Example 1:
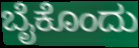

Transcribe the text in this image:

ಬೈಕೊಂದು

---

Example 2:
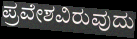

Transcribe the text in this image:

ಪ್ರವೇಶವಿರುವುದು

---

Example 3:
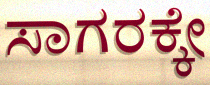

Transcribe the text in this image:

ಸಾಗರಕ್ಕೇ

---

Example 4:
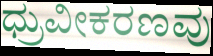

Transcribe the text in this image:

ಧ್ರುವೀಕರಣವು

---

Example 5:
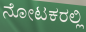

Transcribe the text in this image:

ನೋಟಕರಲ್ಲಿ